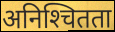
अनिश्‍चितता